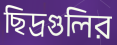
ছিদ্রগুলির